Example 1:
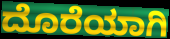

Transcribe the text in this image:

ದೊರೆಯಾಗಿ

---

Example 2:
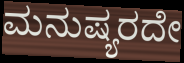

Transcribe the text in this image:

ಮನುಷ್ಯರದೇ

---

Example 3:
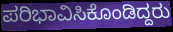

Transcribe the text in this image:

ಪರಿಭಾವಿಸಿಕೊಂಡಿದ್ದರು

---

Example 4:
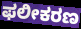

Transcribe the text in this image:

ಫಲೀಕರಣ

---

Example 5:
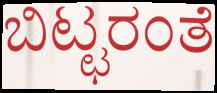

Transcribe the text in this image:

ಬಿಟ್ಟರಂತೆ